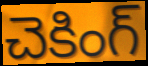
చెకింగ్